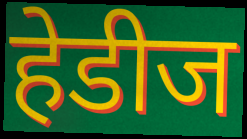
हेडीज